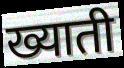
ख्याती